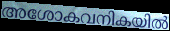
അശോകവനികയിൽ